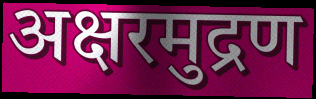
अक्षरमुद्रण